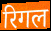
रिगल